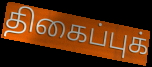
திகைப்புக்